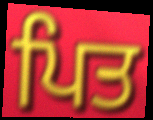
ਪਿਤ